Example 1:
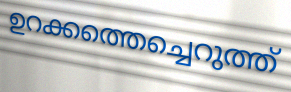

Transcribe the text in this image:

ഉറക്കത്തെച്ചെറുത്ത്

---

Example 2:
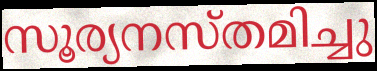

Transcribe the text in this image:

സൂര്യനസ്തമിച്ചു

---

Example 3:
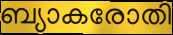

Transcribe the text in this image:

ബ്യാകരോതി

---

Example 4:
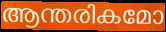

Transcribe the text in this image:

ആന്തരികമോ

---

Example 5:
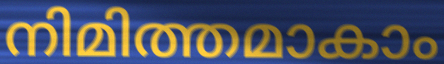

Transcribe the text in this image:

നിമിത്തമാകാം